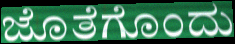
ಜೊತೆಗೊಂದು